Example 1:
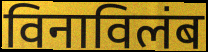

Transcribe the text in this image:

विनाविलंब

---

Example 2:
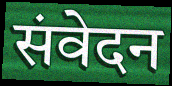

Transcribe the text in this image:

संवेदन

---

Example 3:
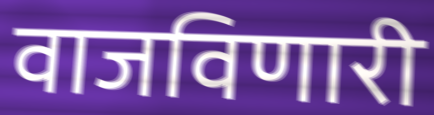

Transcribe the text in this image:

वाजविणारी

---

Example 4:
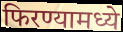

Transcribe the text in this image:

फिरण्यामध्ये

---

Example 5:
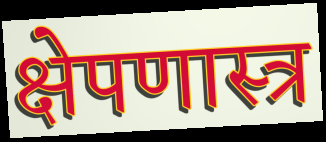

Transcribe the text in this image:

क्षेपणास्त्र